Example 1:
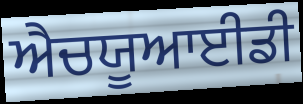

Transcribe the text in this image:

ਐਚਯੂਆਈਡੀ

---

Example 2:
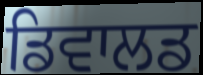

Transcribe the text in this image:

ਡਿਵਾਲਡ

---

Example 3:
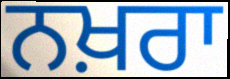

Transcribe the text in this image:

ਨਖ਼ਰਾ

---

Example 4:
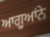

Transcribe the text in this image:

ਆਗੂਆਂਨੇ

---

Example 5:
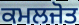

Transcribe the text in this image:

ਕਮਲਜੋਤ